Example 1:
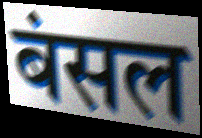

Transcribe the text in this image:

बंसल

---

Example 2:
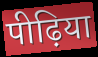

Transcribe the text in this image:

पीढ़िया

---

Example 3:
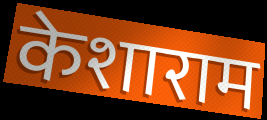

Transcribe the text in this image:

केशाराम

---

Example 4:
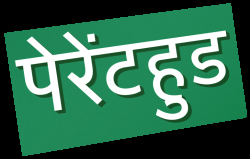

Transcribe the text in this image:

पेरेंटहुड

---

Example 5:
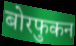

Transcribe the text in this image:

बोरफुकन